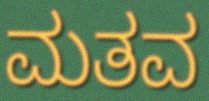
ಮತವ